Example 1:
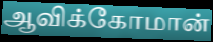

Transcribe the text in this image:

ஆவிக்கோமான்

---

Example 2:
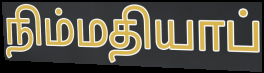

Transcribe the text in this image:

நிம்மதியாப்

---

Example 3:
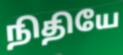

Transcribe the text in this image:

நிதியே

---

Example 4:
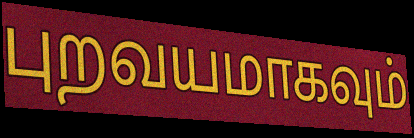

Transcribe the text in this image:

புறவயமாகவும்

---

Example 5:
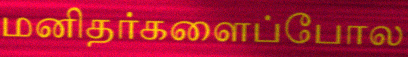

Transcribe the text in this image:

மனிதர்களைப்போல